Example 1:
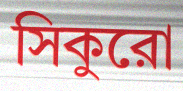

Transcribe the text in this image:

সিকুরো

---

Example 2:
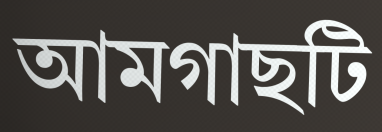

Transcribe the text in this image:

আমগাছটি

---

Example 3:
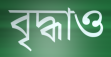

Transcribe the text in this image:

বৃদ্ধাও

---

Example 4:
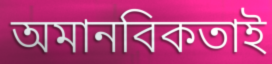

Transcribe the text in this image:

অমানবিকতাই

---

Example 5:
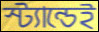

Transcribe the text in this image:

স্ট্যান্ডেই